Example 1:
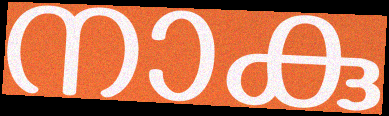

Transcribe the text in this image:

നാകു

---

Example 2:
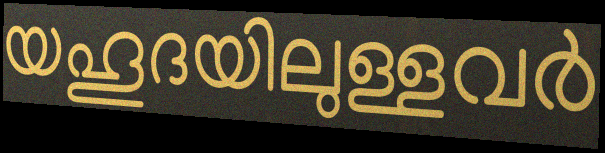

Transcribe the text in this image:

യഹൂദയിലുള്ളവർ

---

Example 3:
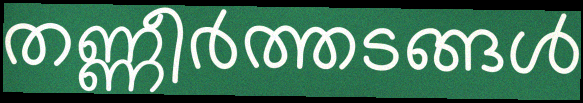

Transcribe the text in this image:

തണ്ണീർത്തടങ്ങൾ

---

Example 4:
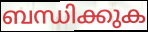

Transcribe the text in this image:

ബന്ധിക്കുക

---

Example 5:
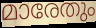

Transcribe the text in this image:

മാരേതും